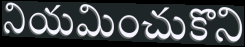
నియమించుకొని